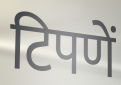
टिपणें